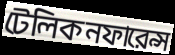
টেলিকনফারেন্স